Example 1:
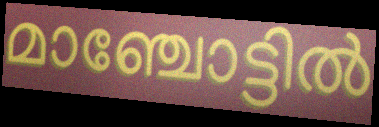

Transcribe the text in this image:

മാഞ്ചോട്ടിൽ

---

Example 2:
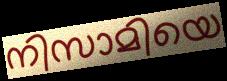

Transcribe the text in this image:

നിസാമിയെ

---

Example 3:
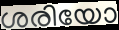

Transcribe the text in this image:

ശരിയോ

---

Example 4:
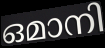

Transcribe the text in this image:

ഒമാനി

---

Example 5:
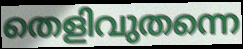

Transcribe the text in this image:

തെളിവുതന്നെ